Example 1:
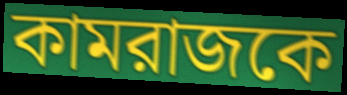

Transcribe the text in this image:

কামরাজকে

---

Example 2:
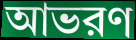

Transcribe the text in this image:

আভরণ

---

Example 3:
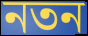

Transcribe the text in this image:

নতন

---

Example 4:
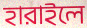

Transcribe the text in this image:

হারাইলে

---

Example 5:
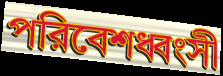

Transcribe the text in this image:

পরিবেশধ্বংসী